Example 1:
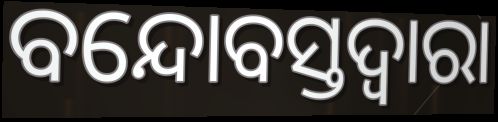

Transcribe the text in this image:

ବନ୍ଦୋବସ୍ତଦ୍ୱାରା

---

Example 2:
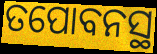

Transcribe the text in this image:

ତପୋବନସ୍ଥ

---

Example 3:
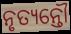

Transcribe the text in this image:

ନୃତ୍ୟନ୍ତୌ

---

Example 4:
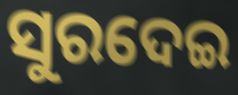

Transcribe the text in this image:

ସୁରଦେଇ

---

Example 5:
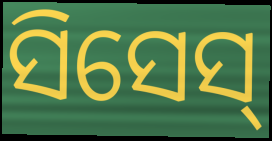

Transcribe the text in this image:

ସିସେସ୍